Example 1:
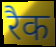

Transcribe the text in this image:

रैक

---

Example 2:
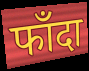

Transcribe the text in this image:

फाँदा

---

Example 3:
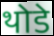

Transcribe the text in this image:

थोडे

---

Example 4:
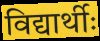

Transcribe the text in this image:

विद्यार्थीः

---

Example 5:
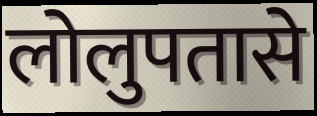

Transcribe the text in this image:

लोलुपतासे